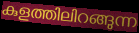
കുളത്തിലിറങ്ങുന്ന